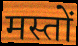
मस्तों